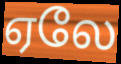
ஏலே